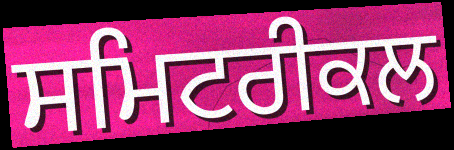
ਸਮਿਟਰੀਕਲ